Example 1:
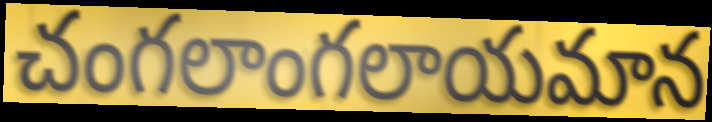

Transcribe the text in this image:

చంగలాంగలాయమాన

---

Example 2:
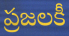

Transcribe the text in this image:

ప్రజలకీ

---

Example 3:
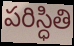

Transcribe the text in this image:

పరిస్ధితి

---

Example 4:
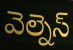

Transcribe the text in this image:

వెల్నెస్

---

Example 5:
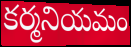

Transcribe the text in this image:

కర్మనియమం